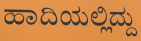
ಹಾದಿಯಲ್ಲಿದ್ದು